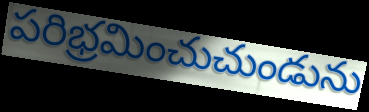
పరిభ్రమించుచుండును